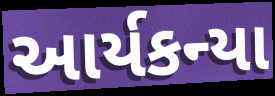
આર્યકન્યા